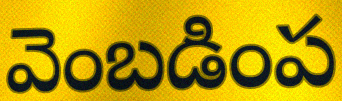
వెంబడింప